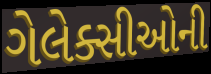
ગેલેક્સીઓની